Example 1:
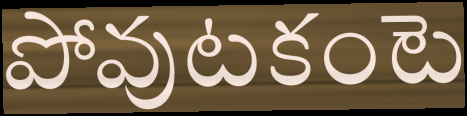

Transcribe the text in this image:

పోవుటకంటె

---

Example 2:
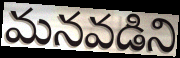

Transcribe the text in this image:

మనవడిని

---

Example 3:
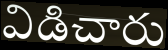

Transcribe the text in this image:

విడిచారు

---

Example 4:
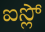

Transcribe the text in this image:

ఐస్లో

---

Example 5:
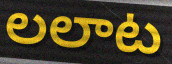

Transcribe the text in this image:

లలాట